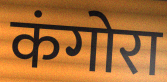
कंगोरा